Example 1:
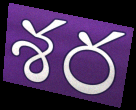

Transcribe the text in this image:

శర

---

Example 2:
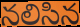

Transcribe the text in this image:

నలిసిన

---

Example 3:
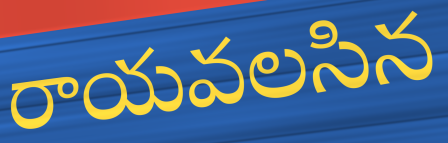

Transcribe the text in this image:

రాయవలసిన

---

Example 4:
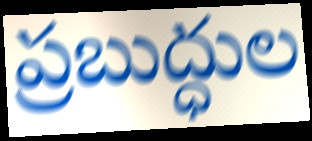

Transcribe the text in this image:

ప్రబుద్ధుల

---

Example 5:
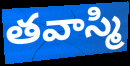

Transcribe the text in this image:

తవాస్మి